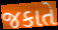
જકાતે